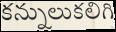
కన్నులుకలిగి